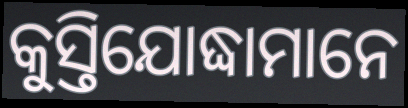
କୁସ୍ତିଯୋଦ୍ଧାମାନେ